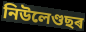
নিউলেণ্ডছৰ